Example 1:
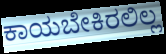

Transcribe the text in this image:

ಕಾಯಬೇಕಿರಲಿಲ್ಲ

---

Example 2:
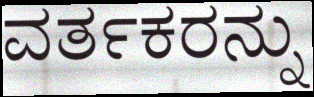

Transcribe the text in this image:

ವರ್ತಕರನ್ನು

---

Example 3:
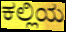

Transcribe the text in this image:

ಕಲ್ಲಿಯ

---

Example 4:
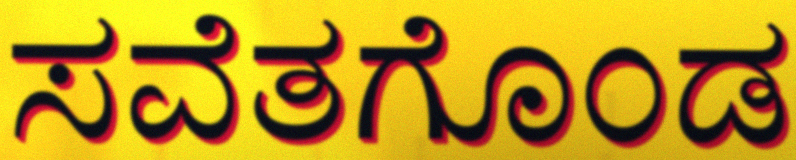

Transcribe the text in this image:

ಸವೆತಗೊಂಡ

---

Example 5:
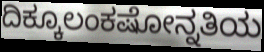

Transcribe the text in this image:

ದಿಕ್ಕೂಲಂಕಷೋನ್ನತಿಯ